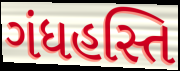
ગંધહસ્તિ